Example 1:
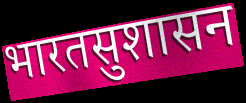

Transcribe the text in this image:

भारतसुशासन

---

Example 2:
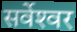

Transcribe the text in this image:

सर्वेश्‍वर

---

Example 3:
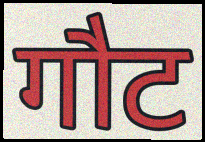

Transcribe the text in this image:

गौट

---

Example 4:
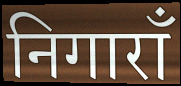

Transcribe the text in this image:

निगाराँ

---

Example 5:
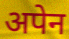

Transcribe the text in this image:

अपेन